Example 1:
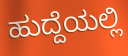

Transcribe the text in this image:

ಹುದ್ದೆಯಲ್ಲಿ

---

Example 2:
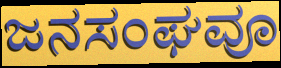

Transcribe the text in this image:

ಜನಸಂಘವೂ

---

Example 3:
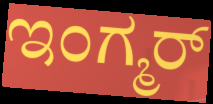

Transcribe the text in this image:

ಇಂಗ್ಮರ್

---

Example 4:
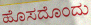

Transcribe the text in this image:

ಹೊಸದೊಂದು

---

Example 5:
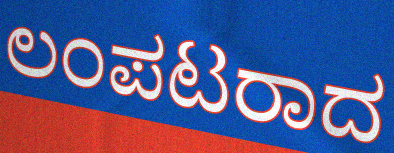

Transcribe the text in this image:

ಲಂಪಟರಾದ